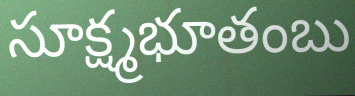
సూక్ష్మభూతంబు